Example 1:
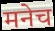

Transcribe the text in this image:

मनेच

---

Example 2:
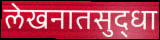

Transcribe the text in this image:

लेखनातसुद्धा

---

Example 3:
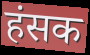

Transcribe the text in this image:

हंसक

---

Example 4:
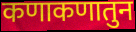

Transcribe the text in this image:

कणाकणातुन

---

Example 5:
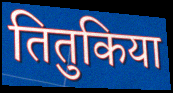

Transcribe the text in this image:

तितुकिया